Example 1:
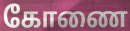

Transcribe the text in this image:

கோணை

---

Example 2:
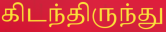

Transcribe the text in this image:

கிடந்திருந்து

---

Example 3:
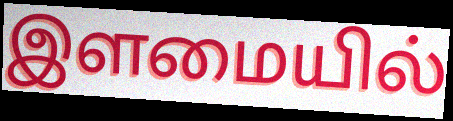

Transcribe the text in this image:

இளமையில்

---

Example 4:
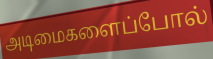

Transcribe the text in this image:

அடிமைகளைப்போல்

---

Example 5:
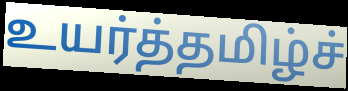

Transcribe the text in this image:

உயர்த்தமிழ்ச்